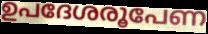
ഉപദേശരൂപേണ